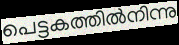
പെട്ടകത്തിൽനിന്നു